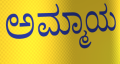
ಅಮ್ಮಾಯ